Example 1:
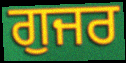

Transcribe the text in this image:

ਗੁਜਰ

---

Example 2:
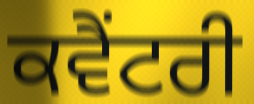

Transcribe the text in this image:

ਕਵੈਂਟਰੀ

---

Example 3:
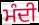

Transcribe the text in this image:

ਮੰਦੀ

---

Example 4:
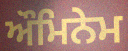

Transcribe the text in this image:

ਔਮਿਨੇਮ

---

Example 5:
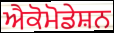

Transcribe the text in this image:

ਐਕੋਮੋਡੇਸ਼ਨ